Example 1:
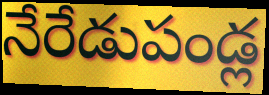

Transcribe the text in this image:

నేరేడుపండ్ల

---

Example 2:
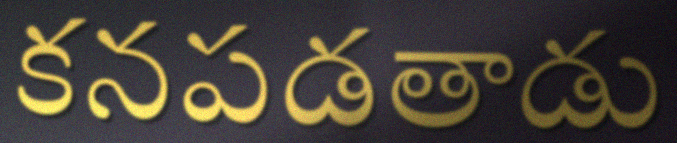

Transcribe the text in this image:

కనపడతాడు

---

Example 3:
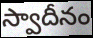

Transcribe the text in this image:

స్వాదీనం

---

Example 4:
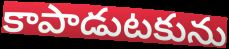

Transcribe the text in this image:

కాపాడుటకును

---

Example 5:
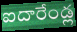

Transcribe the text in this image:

ఐదారేండ్ల